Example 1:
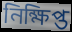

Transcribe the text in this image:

নিক্ষিপ্ত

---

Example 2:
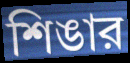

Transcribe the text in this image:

শিঙার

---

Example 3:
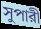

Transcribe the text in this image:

সুপারী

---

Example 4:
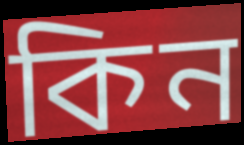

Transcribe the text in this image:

কিন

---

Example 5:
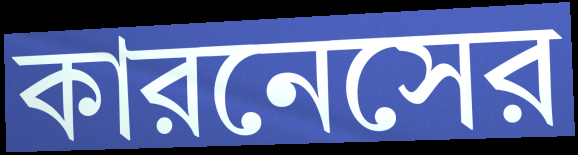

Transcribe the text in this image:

কারনেসের